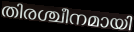
തിരശ്ചീനമായി